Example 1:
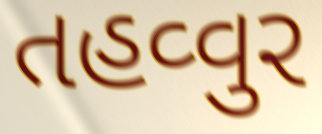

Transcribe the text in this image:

તહવ્વુર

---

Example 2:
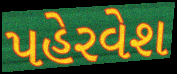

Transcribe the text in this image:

પહેરવેશ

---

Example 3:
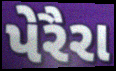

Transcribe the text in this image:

પેરૈરા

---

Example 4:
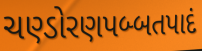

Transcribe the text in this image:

ચણ્ડોરણપબ્બતપાદં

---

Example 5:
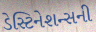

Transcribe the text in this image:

ડેસ્ટિનેશન્સની